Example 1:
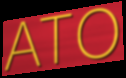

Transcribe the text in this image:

ATO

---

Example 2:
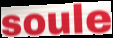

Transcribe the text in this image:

soule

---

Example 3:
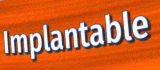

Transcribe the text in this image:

Implantable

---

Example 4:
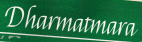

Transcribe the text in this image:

Dharmatmara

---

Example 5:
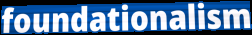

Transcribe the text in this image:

foundationalism